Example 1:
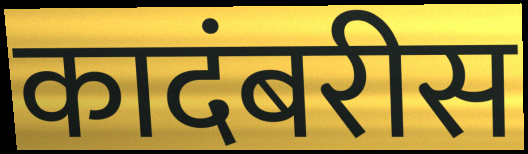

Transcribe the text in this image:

कादंबरीस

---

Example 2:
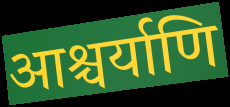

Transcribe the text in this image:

आश्चर्याणि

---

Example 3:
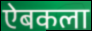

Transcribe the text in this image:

ऐबकला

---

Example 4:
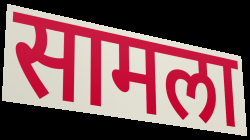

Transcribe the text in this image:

सामला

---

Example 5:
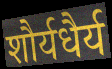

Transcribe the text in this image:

शौर्यधैर्य